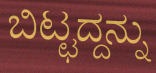
ಬಿಟ್ಟದ್ದನ್ನು